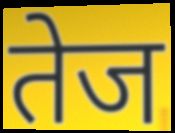
तेज